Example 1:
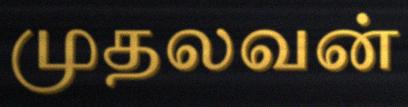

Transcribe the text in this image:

முதலவன்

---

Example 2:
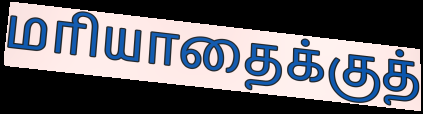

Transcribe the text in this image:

மரியாதைக்குத்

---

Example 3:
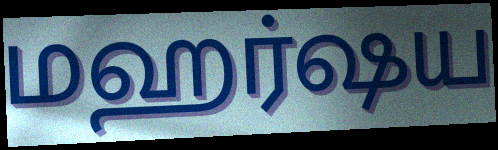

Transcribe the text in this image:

மஹர்ஷய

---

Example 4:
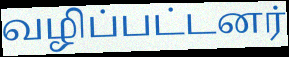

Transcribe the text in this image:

வழிப்பட்டனர்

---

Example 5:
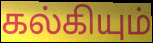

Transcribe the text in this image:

கல்கியும்